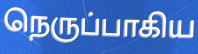
நெருப்பாகிய